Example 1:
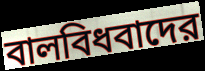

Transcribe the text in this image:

বালবিধবাদের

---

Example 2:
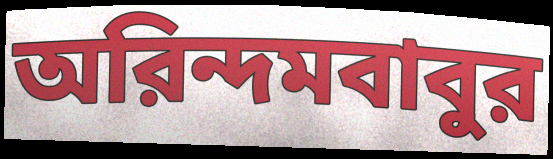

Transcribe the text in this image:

অরিন্দমবাবুর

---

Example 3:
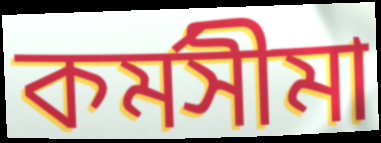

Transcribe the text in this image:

কর্মসীমা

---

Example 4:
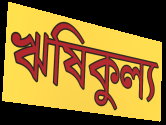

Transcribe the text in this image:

ঋষিকুল্য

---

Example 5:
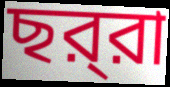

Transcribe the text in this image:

ছর্‌রা